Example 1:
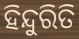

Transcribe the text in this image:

ହିନ୍ଦୁରିତି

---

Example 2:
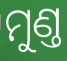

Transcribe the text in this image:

ମୁଣ୍ତ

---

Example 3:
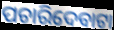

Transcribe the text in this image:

ପଚାରିଦେବାଟା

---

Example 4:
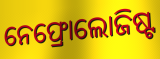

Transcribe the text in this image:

ନେଫ୍ରୋଲୋଜିଷ୍ଟ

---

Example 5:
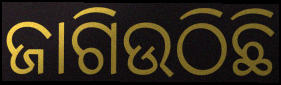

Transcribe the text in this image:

ଜାଗିଉଠିଛି